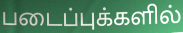
படைப்புக்களில்